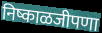
निष्काळजीपणा